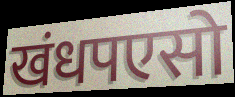
खंधपएसो